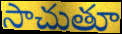
సాచుతూ